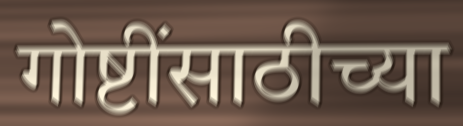
गोष्टींसाठीच्या